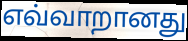
எவ்வாறானது